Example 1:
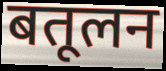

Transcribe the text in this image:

बतूलन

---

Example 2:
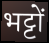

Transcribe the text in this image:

भट्टों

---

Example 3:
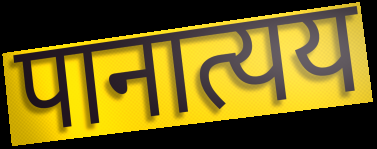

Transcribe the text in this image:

पानात्यय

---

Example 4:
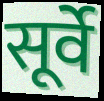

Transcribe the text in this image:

सूर्वे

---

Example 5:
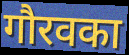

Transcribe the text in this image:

गौरवका